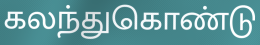
கலந்துகொண்டு